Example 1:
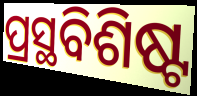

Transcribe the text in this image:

ପ୍ରସ୍ଥବିଶିଷ୍ଟ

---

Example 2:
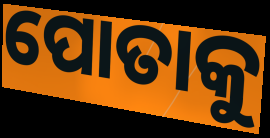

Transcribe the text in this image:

ପୋତାକୁ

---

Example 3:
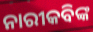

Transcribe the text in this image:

ନାରୀକବିଙ୍କ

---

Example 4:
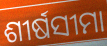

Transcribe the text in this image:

ଶୀର୍ଷସୀମା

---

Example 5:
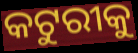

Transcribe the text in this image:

କଟୁରୀକୁ